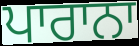
ਪਾਰਾਨਾ